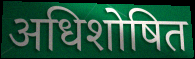
अधिशोषित